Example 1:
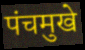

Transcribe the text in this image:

पंचमुखे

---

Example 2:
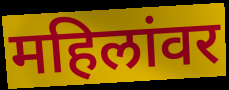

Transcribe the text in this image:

महिलांवर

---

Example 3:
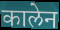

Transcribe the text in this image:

कालेन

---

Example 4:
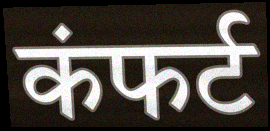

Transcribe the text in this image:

कंफर्ट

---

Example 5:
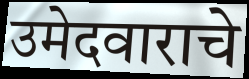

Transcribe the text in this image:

उमेदवाराचे